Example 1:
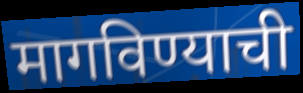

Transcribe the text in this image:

मागविण्याची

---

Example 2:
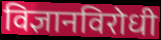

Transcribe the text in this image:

विज्ञानविरोधी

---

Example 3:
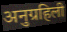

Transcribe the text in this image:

अनुग्रहिली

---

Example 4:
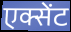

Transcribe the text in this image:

एक्सेंट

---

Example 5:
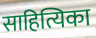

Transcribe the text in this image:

साहित्यिका